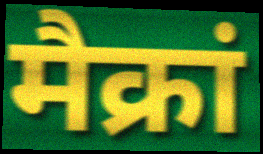
मैक्रां